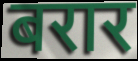
बरार